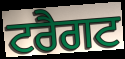
ਟਰੈਗਟ